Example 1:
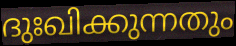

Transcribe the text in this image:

ദുഃഖിക്കുന്നതും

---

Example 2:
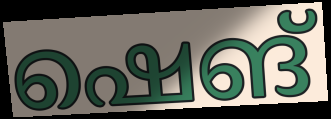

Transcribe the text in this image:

ഷെങ്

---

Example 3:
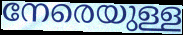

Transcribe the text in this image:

നേരെയുള്ള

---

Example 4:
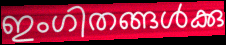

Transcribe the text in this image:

ഇംഗിതങ്ങൾക്കു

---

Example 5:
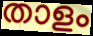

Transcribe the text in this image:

താളം